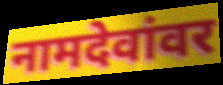
नामदेवांवर